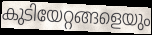
കുടിയേറ്റങ്ങളെയും